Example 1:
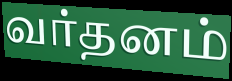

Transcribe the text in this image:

வர்தனம்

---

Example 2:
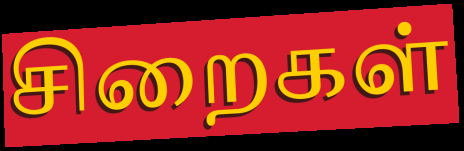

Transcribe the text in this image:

சிறைகள்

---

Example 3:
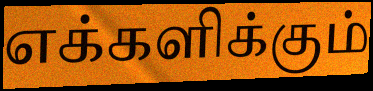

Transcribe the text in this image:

எக்களிக்கும்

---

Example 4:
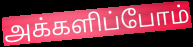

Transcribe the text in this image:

அக்களிப்போம்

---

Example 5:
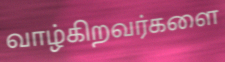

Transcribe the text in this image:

வாழ்கிறவர்களை